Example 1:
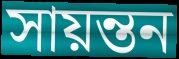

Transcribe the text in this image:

সায়ন্তন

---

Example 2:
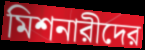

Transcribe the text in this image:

মিশনারীদের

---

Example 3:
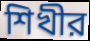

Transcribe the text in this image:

শিখীর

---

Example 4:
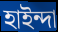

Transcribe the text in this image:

হাইন্দা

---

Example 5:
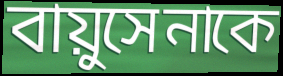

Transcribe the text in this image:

বায়ুসেনাকে